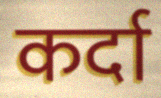
कर्दा